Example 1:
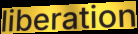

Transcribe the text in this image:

liberation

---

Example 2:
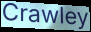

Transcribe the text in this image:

Crawley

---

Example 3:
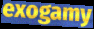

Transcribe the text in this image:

exogamy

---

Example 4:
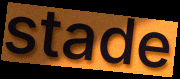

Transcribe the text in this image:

stade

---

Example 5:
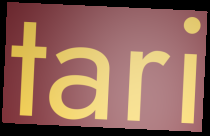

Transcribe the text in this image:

tari